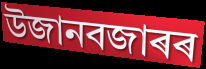
উজানবজাৰৰ